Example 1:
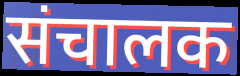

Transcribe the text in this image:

संचालक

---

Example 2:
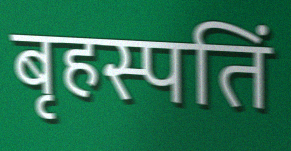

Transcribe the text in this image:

बृहस्पतिं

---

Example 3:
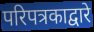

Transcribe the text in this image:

परिपत्रकाद्वारे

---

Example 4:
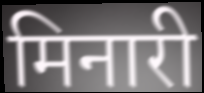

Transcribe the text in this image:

मिनारी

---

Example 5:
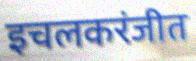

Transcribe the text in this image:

इचलकरंजीत